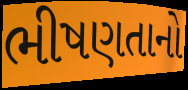
ભીષણતાનો